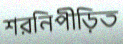
শরনিপীড়িত